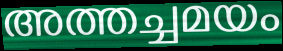
അത്തച്ചമയം